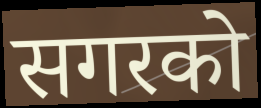
सगरको